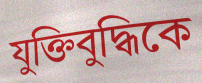
যুক্তিবুদ্ধিকে